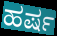
ಹರ್ಷ